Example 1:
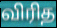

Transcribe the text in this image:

விரித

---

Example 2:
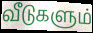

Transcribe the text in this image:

வீடுகளும்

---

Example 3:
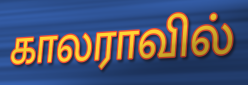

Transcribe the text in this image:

காலராவில்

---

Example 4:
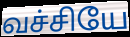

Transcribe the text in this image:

வச்சியே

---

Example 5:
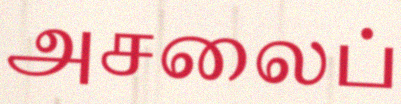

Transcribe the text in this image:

அசலைப்